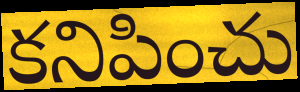
కనిపించు